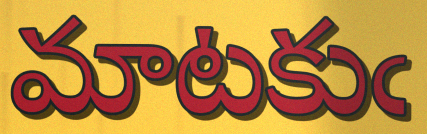
మాటకుఁ